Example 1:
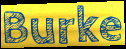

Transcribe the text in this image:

Burke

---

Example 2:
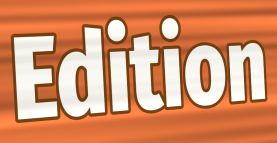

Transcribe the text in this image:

Edition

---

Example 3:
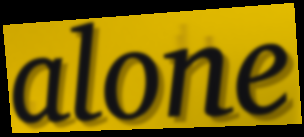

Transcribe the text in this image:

alone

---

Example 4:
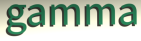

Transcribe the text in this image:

gamma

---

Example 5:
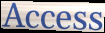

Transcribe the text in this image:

Access